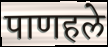
पाणहले